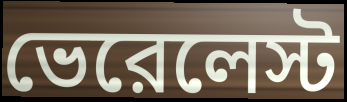
ভেরেলেস্ট